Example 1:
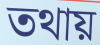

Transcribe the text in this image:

তথায়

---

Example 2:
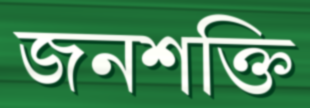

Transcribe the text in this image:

জনশক্তি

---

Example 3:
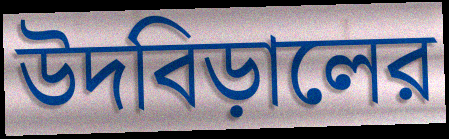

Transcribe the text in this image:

উদবিড়ালের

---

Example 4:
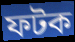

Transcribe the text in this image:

ফটক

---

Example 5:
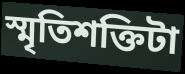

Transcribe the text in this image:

স্মৃতিশক্তিটা